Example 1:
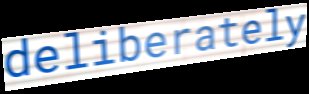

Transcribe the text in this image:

deliberately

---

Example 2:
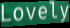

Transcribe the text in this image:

Lovely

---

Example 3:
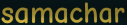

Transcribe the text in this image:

samachar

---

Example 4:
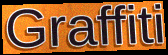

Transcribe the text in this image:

Graffiti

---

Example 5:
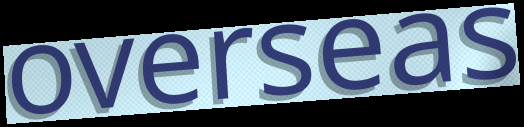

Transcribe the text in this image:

overseas